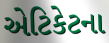
એટિકેટના